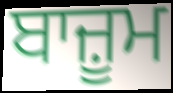
ਬਾਜ਼ੂਮ